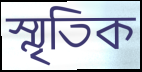
স্মৃতিক